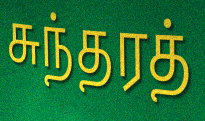
சுந்தரத்